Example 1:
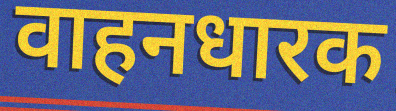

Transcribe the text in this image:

वाहनधारक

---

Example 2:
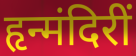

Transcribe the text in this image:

हृन्मंदिरीं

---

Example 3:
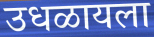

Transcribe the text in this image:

उधळायला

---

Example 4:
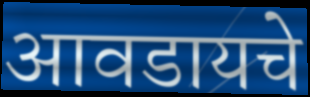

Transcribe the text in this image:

आवडायचे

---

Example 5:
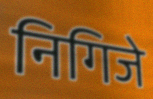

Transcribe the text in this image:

निगिजे